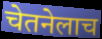
चेतनेलाच